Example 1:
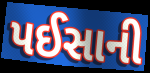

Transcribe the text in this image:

પઈસાની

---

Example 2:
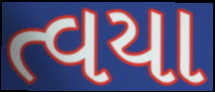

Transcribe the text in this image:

ત્વયા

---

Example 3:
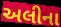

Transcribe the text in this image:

અલીના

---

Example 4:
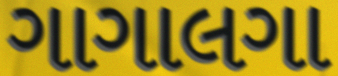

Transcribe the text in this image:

ગાગાલગા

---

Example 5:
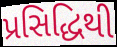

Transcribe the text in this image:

પ્રસિદ્ધિથી